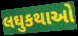
લઘુકથાઓ